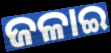
ଜଳାଇ